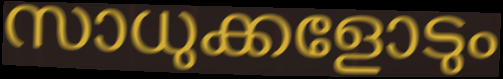
സാധുക്കളോടും